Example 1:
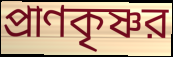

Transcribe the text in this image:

প্রাণকৃষ্ণর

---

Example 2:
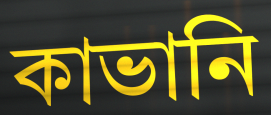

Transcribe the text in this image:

কাভানি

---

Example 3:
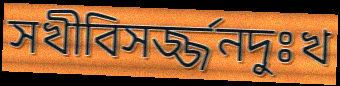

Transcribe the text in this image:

সখীবিসর্জ্জনদুঃখ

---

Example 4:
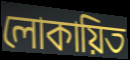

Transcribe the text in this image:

লোকায়িত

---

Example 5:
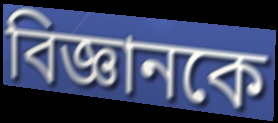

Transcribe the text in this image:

বিজ্ঞানকে